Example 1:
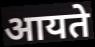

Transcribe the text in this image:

आयते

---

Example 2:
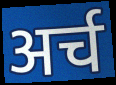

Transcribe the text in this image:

अर्च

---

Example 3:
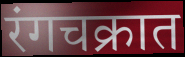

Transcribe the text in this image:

रंगचक्रात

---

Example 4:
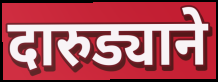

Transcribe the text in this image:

दारुड्याने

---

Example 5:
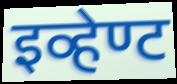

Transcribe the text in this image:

इव्हेण्ट